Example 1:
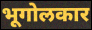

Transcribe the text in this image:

भूगोलकार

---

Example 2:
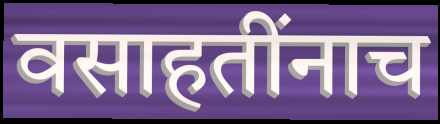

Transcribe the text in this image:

वसाहतींनाच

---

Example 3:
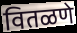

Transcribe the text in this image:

वितळणे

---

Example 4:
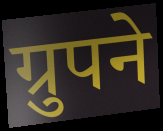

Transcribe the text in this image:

ग्रुपने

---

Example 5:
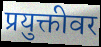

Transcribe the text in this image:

प्रयुक्तीवर